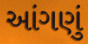
આંગણું